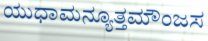
ಯುಧಾಮನ್ಯೂತ್ತಮೌಂಜಸ